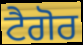
ਟੈਗੋਰ